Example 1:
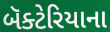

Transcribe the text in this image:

બૅક્ટેરિયાના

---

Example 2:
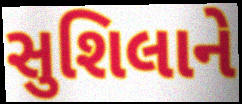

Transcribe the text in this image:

સુશિલાને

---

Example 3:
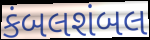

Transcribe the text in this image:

કંબલશંબલ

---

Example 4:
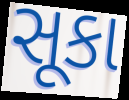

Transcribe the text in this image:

સૂકા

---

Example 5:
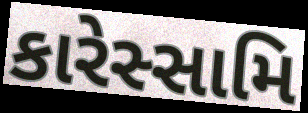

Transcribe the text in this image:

કારેસ્સામિ